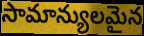
సామాన్యులమైన